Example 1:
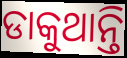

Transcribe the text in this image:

ଡାକୁଥାନ୍ତି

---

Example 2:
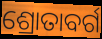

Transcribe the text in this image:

ଶ୍ରୋତାବର୍ଗ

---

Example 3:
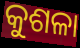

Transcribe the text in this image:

କୁଶଳା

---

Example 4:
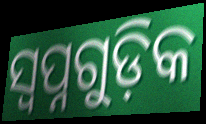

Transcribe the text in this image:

ସ୍ଵପ୍ନଗୁଡ଼ିକ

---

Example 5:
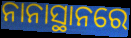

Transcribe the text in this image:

ନାନାସ୍ଥାନରେ